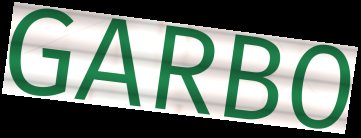
GARBO